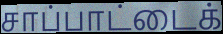
சாப்பாட்டைக்